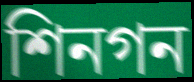
শিনগন